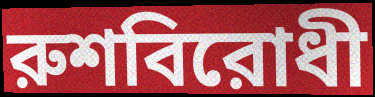
রুশবিরোধী